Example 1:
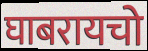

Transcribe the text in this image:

घाबरायचो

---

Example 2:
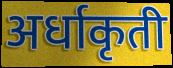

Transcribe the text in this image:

अर्धाकृती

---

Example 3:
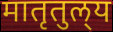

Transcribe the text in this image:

मातृतुल्य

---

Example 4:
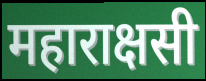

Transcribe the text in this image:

महाराक्षसी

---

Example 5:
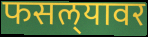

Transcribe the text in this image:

फसल्यावर